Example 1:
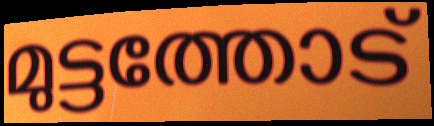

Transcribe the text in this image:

മുട്ടത്തോട്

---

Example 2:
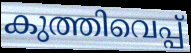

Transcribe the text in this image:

കുത്തിവെപ്പ്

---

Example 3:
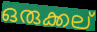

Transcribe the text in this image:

ഒരുക്കല്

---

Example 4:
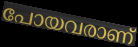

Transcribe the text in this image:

പോയവരാണ്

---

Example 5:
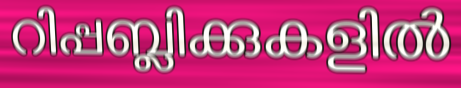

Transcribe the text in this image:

റിപ്പബ്ലിക്കുകളിൽ